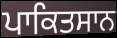
ਪਾਕਿਤਸਾਨ